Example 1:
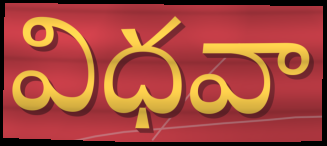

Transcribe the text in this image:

విధవా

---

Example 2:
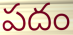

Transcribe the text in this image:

పదం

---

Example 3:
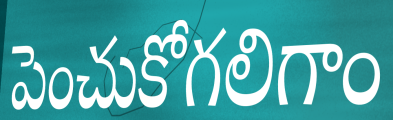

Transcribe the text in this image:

పెంచుకోగలిగాం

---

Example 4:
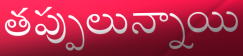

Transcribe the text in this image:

తప్పులున్నాయి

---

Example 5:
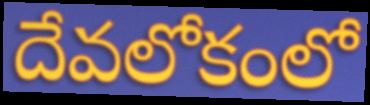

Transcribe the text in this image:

దేవలోకంలో